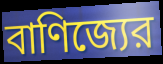
বাণিজ্যের